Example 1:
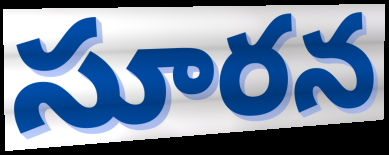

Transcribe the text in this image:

సూరన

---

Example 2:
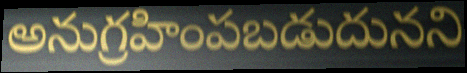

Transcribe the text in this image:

అనుగ్రహింపబడుదునని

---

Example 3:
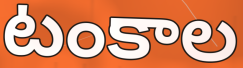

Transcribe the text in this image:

టంకాల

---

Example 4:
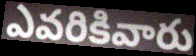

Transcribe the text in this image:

ఎవరికివారు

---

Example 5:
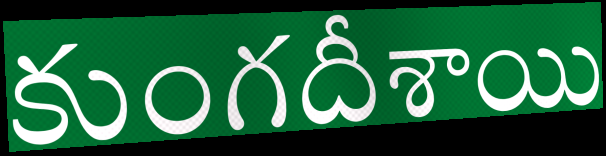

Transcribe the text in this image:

కుంగదీశాయి